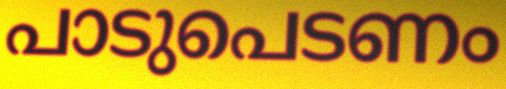
പാടുപെടണം